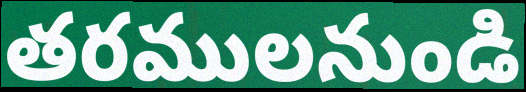
తరములనుండి